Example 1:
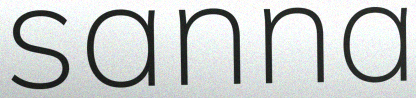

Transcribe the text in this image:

sanna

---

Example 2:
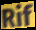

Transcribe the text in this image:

Rif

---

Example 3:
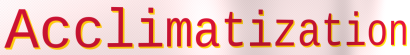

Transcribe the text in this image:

Acclimatization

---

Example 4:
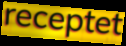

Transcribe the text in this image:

receptet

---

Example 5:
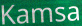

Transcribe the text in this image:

Kamsa